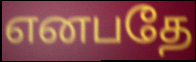
எனபதே